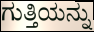
ಗುತ್ತಿಯನ್ನು